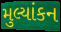
મુલ્યાંકન